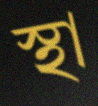
স্থা